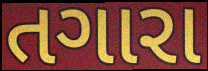
તગારા